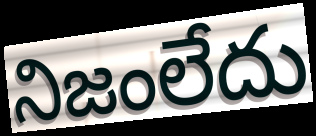
నిజంలేదు